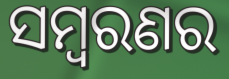
ସମ୍ବରଣର